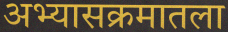
अभ्यासक्रमातला